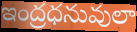
ఇంద్రధనువులా